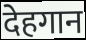
देहगान